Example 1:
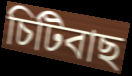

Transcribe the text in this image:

চিটিবাছ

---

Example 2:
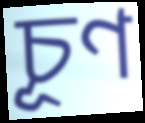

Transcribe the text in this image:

চূণ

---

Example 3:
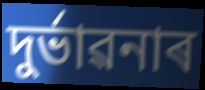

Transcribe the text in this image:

দুৰ্ভাৱনাৰ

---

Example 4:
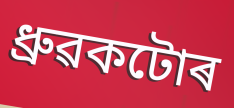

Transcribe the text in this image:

ধ্ৰুৱকটোৰ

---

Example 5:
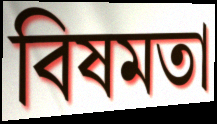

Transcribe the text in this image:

বিষমতা